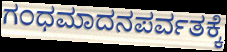
ಗಂಧಮಾದನಪರ್ವತಕ್ಕೆ